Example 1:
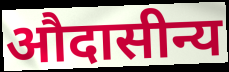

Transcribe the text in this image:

औदासीन्य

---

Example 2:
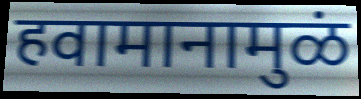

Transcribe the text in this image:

हवामानामुळं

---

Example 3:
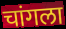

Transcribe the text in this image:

चांगला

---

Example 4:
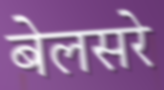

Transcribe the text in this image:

बेलसरे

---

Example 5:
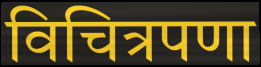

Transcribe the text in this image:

विचित्रपणा